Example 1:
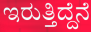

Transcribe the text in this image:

ಇರುತ್ತಿದ್ದೆನೆ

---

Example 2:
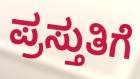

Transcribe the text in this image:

ಪ್ರಸ್ತುತಿಗೆ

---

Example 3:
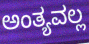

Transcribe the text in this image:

ಅಂತ್ಯವಲ್ಲ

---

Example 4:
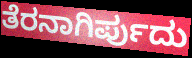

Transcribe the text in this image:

ತೆರನಾಗಿರ್ಪುದು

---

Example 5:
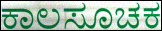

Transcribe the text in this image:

ಕಾಲಸೂಚಕ